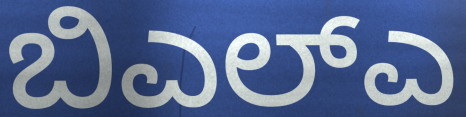
ಬಿಎಲ್ಎ